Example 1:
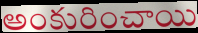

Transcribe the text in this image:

అంకురించాయి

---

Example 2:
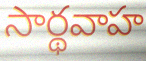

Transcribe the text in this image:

సార్థవాహ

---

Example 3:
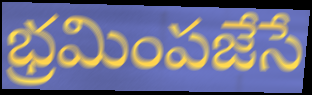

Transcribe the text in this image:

భ్రమింపజేసే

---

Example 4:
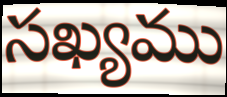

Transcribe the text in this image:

సఖ్యము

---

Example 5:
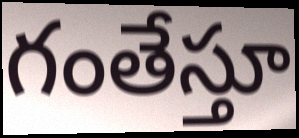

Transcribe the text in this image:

గంతేస్తూ